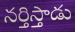
నర్తిస్తాడు